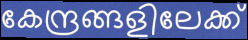
കേന്ദ്രങ്ങളിലേക്ക്